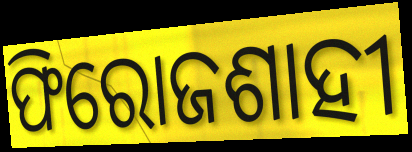
ଫିରୋଜଶାହୀ